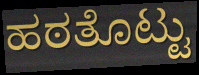
ಹಠತೊಟ್ಟು